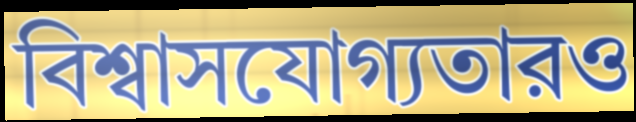
বিশ্বাসযোগ্যতারও